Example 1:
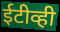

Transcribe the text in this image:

ईटीव्ही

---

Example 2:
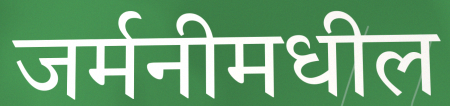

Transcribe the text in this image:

जर्मनीमधील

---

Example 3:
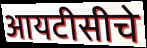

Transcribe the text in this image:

आयटीसीचे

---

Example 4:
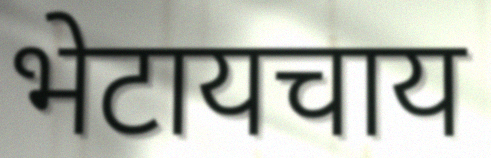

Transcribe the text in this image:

भेटायचाय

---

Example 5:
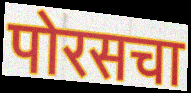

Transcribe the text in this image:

पोरसचा